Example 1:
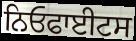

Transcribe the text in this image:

ਨਿਓਫਾਈਟਸ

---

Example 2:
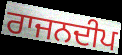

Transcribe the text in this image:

ਰਾਜਨਦੀਪ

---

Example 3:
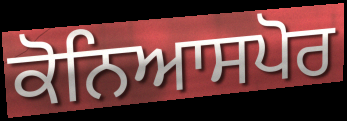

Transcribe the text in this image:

ਕੋਨਿਆਸਪੋਰ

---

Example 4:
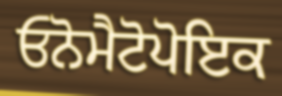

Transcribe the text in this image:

ਓਨੋਮੈਟੋਪੋਇਕ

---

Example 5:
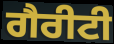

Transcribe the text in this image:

ਗੈਰੀਟੀ